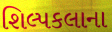
શિલ્પકલાના